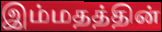
இம்மதத்தின்